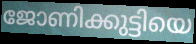
ജോണിക്കുട്ടിയെ